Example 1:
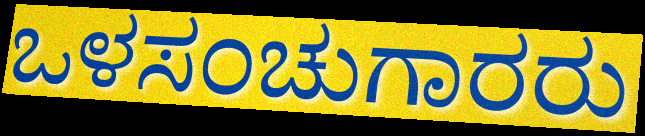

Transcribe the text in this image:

ಒಳಸಂಚುಗಾರರು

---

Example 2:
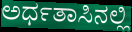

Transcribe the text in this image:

ಅರ್ಧತಾಸಿನಲ್ಲಿ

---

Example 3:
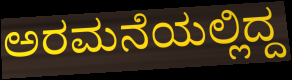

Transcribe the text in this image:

ಅರಮನೆಯಲ್ಲಿದ್ದ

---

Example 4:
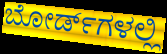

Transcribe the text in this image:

ಬೋರ್ಡ್‌ಗಳಲ್ಲಿ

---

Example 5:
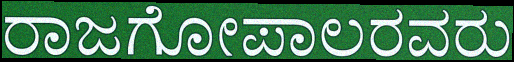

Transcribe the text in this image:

ರಾಜಗೋಪಾಲರವರು